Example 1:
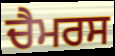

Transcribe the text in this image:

ਚੈਮਰਸ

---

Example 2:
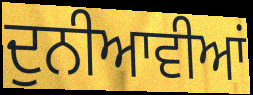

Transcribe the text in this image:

ਦੁਨੀਆਵੀਆਂ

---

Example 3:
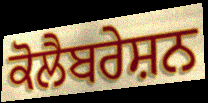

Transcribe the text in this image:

ਕੋਲੈਬਰੇਸ਼ਨ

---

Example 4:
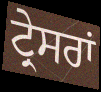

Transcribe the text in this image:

ਟ੍ਰੇਸਰਾਂ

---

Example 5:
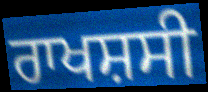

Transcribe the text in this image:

ਰਾਖਸ਼ਸੀ